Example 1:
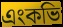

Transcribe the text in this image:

এংকভি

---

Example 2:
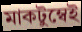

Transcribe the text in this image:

মাকটুম্বেই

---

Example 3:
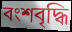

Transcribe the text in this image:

বংশবৃদ্ধি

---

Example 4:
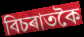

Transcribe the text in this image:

বিচৰাতকৈ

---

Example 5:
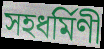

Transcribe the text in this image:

সহধৰ্মিণী